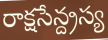
రాక్షసేన్ద్రస్య